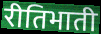
रीतिभाती